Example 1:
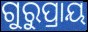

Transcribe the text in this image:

ଗୁରୁପ୍ରାୟ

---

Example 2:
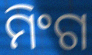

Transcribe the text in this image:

ମିଂଗ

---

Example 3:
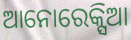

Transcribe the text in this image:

ଆନୋରେକ୍ସିଆ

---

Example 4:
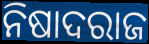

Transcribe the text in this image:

ନିଷାଦରାଜ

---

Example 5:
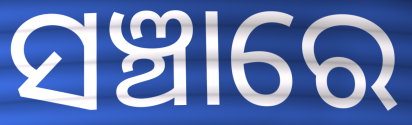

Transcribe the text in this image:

ସଞ୍ଚାରେ